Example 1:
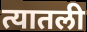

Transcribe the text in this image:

त्यातली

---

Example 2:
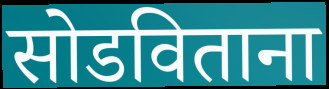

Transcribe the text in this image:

सोडविताना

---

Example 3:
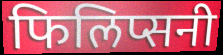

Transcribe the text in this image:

फिलिप्सनी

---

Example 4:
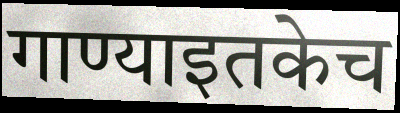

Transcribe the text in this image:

गाण्याइतकेच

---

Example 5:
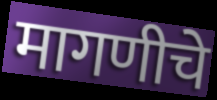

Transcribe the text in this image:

मागणीचे